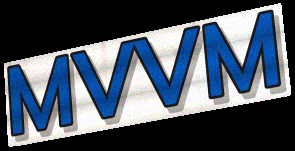
MVVM